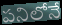
పనిలోనే